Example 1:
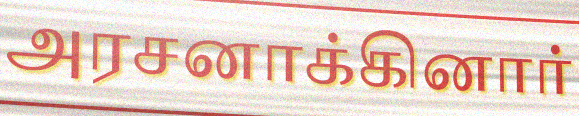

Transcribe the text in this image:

அரசனாக்கினார்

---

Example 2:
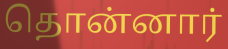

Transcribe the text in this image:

தொன்னார்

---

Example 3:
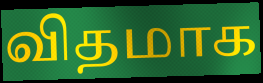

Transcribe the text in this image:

விதமாக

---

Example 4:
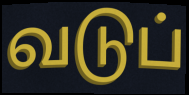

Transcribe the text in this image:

வடுப்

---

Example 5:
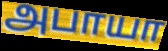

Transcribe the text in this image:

அபாயா